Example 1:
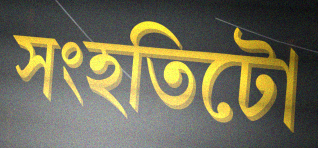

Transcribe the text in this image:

সংহতিটো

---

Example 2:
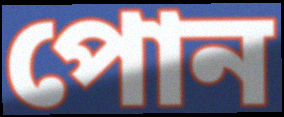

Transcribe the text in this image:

পোন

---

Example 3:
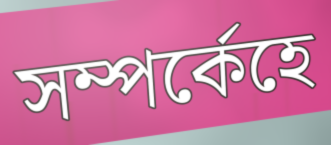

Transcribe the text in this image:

সম্পৰ্কেহে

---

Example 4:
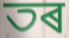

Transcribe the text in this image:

তৰ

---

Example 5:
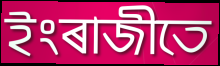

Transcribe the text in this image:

ইংৰাজীতে